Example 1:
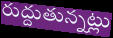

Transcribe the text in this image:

రుద్దుతున్నట్లు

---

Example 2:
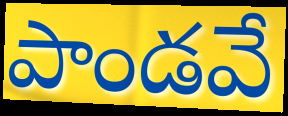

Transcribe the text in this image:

పాండవే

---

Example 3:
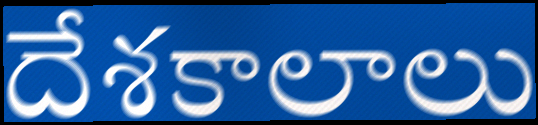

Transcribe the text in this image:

దేశకాలాలు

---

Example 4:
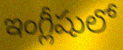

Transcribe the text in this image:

ఇంగ్లీషులో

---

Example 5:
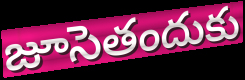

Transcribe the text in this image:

జూసెతందుకు